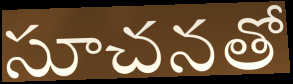
సూచనతో